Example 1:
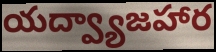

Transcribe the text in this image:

యద్వ్యాజహార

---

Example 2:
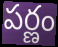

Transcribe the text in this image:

పర్ణం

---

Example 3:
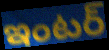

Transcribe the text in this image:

ఇంటర్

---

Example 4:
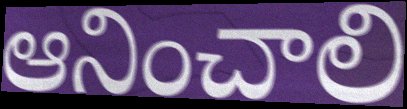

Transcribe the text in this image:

ఆనించాలి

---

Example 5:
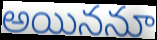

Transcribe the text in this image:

అయిననూ